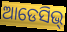
ଆଡେସିଭ୍